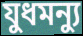
যুধমন্যু